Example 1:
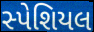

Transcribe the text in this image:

સ્પેશિયલ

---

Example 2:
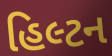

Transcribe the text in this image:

હિલ્ટન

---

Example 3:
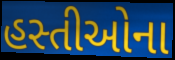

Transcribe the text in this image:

હસ્તીઓના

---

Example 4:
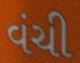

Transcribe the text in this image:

વંચી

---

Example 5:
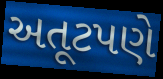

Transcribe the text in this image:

અતૂટપણે